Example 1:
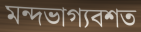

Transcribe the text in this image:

মন্দভাগ্যবশত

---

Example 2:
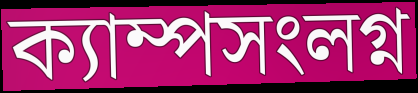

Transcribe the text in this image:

ক্যাম্পসংলগ্ন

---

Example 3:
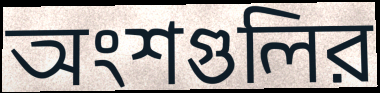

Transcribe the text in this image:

অংশগুলির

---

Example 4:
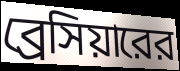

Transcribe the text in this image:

ব্রেসিয়ারের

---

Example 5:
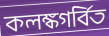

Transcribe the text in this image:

কলঙ্কগর্বিত